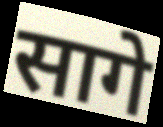
सागे